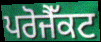
ਪਰੋਜੈੱਕਟ